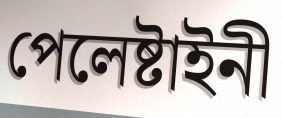
পেলেষ্টাইনী